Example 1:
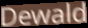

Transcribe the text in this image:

Dewald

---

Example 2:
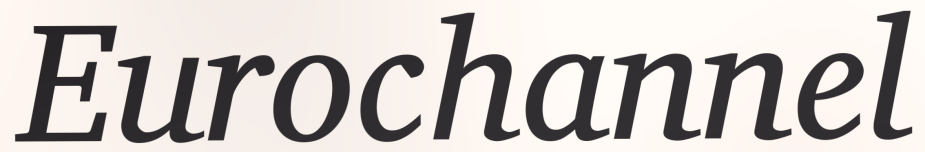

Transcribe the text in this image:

Eurochannel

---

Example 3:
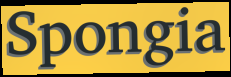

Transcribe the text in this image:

Spongia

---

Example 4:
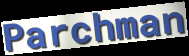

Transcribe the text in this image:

Parchman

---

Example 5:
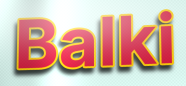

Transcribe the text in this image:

Balki